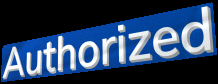
Authorized